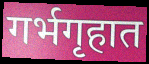
गर्भगृहात